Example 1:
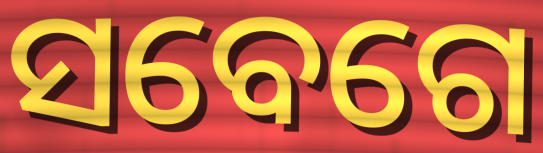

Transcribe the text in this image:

ସବେଗେ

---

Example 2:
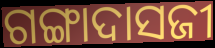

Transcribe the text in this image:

ଗଙ୍ଗାଦାସଜୀ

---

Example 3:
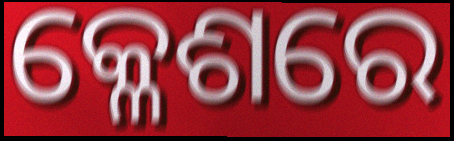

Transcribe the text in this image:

କ୍ଳେଶରେ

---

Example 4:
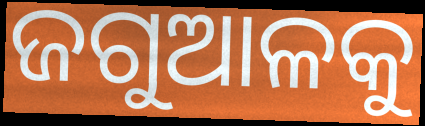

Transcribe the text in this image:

ଜଗୁଆଳକୁ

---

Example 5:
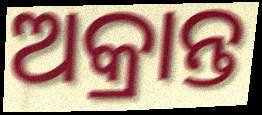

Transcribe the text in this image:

ଅକ୍ରାନ୍ତ